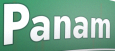
Panam